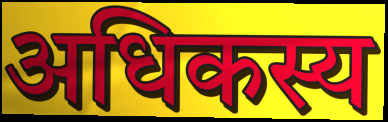
अधिकस्य